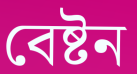
বেষ্টন